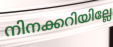
നിനക്കറിയില്ലേ